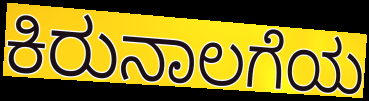
ಕಿರುನಾಲಗೆಯ